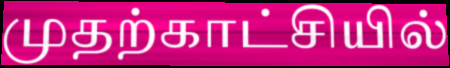
முதற்காட்சியில்